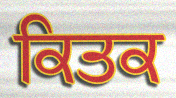
ਕਿਤਕ